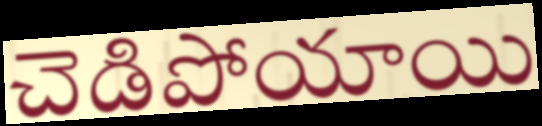
చెడిపోయాయి